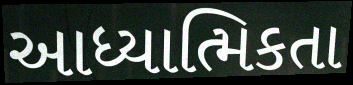
આધ્યાત્મિકતા